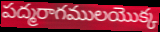
పద్మరాగములయొక్క